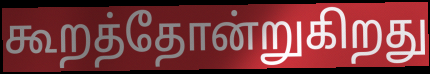
கூறத்தோன்றுகிறது